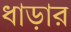
ধাড়ার